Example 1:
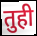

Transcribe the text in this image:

तुही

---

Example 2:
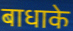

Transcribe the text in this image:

बाधाके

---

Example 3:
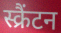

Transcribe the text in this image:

स्क्रैंटन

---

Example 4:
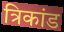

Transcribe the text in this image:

त्रिकांड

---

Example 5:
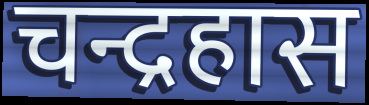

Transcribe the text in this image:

चन्द्रहास